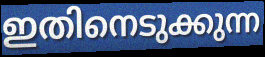
ഇതിനെടുക്കുന്ന